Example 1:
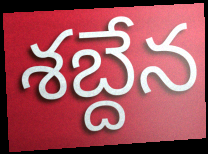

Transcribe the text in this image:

శబ్దేన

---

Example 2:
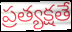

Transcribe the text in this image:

ప్రత్యక్షతే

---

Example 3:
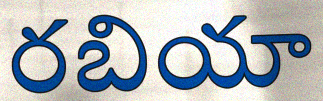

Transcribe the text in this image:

రబియా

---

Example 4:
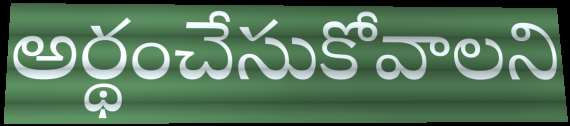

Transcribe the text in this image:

అర్థంచేసుకోవాలని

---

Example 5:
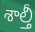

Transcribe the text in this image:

శాల్తీ